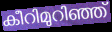
കീറിമുറിഞ്ഞ്